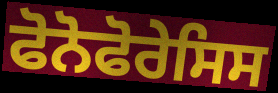
ਫੋਨੋਫੋਰੇਸਿਸ